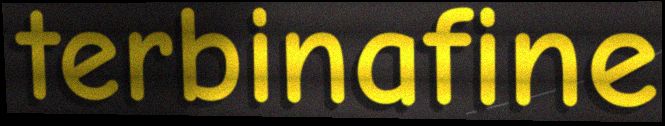
terbinafine